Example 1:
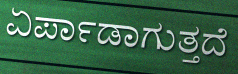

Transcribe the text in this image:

ಏರ್ಪಾಡಾಗುತ್ತದೆ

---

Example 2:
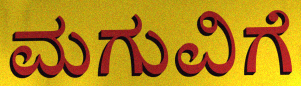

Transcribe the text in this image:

ಮಗುವಿಗೆ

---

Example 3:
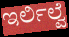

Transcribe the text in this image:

ಇರ್ಲಿಲ್ವೆ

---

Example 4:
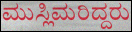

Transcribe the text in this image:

ಮುಸ್ಲಿಮರಿದ್ದರು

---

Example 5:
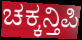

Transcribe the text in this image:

ಚಕ್ಕನ್ತಿಪಿ